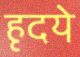
हृदये